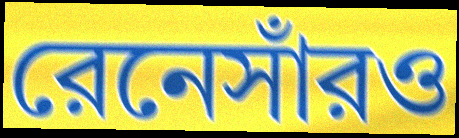
রেনেসাঁরও